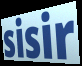
sisir